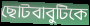
ছোটবাবুটিকে